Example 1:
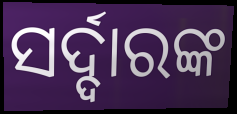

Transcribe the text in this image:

ସର୍ଦ୍ଦାରଙ୍କ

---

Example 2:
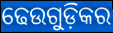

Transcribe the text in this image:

ଢେଉଗୁଡ଼ିକର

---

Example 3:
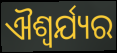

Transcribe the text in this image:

ଐଶ୍ଵର୍ଯ୍ୟର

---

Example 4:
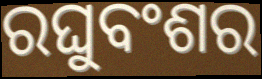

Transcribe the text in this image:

ରଘୁବଂଶର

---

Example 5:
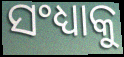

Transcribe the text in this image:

ସଂଧ୍ୟାକୁ